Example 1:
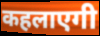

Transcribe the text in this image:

कहलाएगी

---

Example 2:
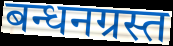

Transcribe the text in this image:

बन्धनग्रस्त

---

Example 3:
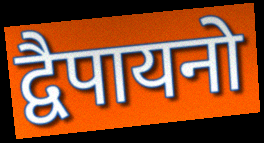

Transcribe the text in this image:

द्वैपायनो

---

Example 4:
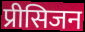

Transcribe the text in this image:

प्रीसिजन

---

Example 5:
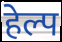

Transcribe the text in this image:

हेल्‍प